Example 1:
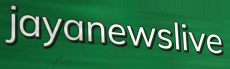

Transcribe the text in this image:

jayanewslive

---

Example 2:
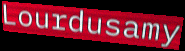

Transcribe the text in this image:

Lourdusamy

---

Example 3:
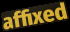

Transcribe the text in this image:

affixed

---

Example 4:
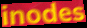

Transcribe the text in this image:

inodes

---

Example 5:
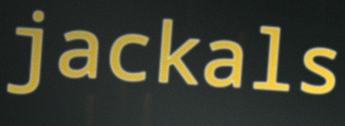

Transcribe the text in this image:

jackals